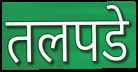
तलपडे